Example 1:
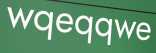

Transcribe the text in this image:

wqeqqwe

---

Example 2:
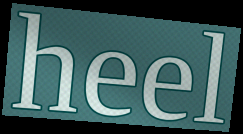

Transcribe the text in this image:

heel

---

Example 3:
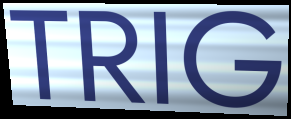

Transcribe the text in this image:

TRIG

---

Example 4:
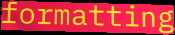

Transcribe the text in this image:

formatting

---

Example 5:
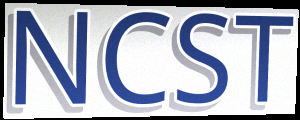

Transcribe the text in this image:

NCST